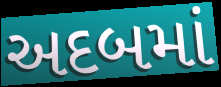
અદબમાં